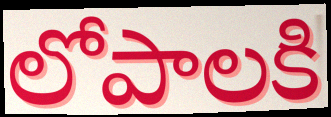
లోపాలకి